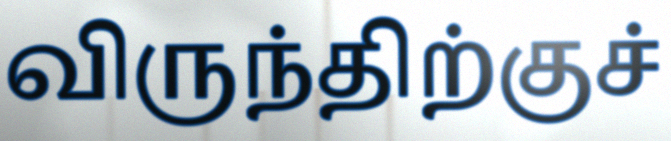
விருந்திற்குச்